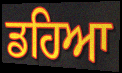
ਡਹਿਆ